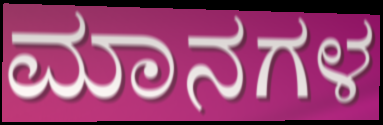
ಮಾನಗಳ